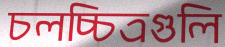
চলচ্চিত্রগুলি